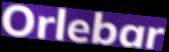
Orlebar